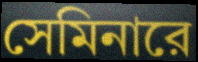
সেমিনারে